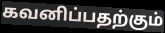
கவனிப்பதற்கும்